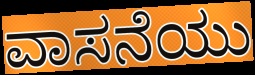
ವಾಸನೆಯು